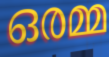
ഒരമ്മ